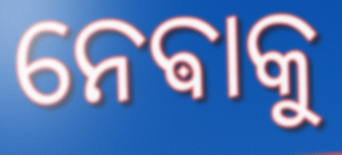
ନେଵାକୁ